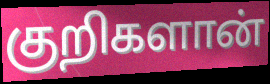
குறிகளான்